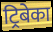
ट्रिबेका